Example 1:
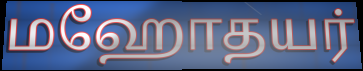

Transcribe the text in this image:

மஹோதயர்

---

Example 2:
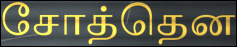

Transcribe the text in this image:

சோத்தென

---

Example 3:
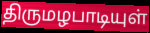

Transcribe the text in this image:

திருமழபாடியுள்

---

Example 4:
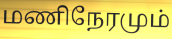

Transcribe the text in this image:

மணிநேரமும்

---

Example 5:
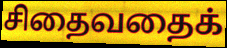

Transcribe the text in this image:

சிதைவதைக்